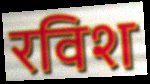
रविश